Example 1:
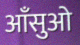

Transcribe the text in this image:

आँसुओ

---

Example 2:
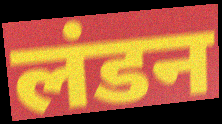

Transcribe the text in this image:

लंडन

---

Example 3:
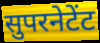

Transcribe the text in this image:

सुपरनेटेंट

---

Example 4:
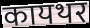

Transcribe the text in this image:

कायथर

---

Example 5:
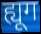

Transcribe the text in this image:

ह्यूग